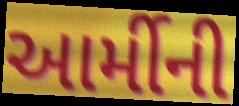
આર્મીની